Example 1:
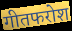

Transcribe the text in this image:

गीतफरोश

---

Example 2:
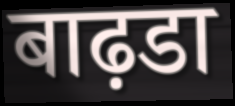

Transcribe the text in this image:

बाढ़डा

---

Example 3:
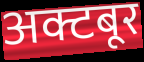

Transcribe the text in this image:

अक्टबूर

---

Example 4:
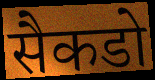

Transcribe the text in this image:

सैकडो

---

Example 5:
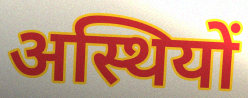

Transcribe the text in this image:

अस्थियों